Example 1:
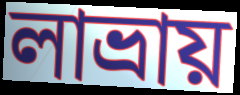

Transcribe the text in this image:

লাভ্ৰায়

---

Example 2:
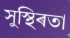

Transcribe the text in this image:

সুস্থিৰতা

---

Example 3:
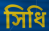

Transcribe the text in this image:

সিধি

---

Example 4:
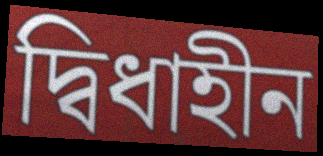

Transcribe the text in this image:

দ্বিধাহীন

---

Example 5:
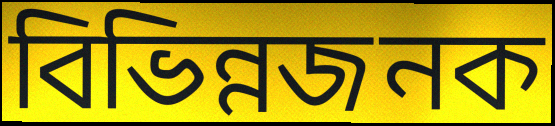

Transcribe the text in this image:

বিভিন্নজনক